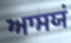
ਆਸਯਂ